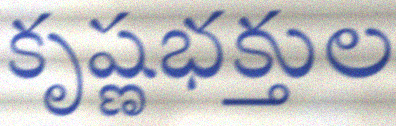
కృష్ణభక్తుల